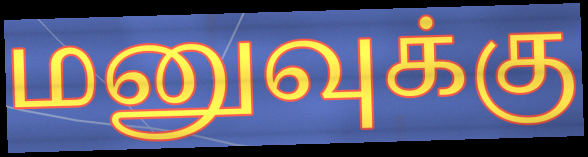
மனுவுக்கு